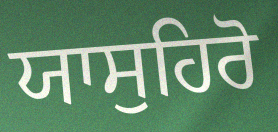
ਯਾਸੁਹਿਰੋ